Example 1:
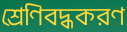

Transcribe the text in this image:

শ্রেণিবদ্ধকরণ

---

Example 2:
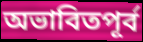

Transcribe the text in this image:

অভাবিতপূর্ব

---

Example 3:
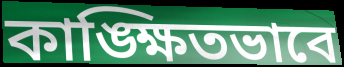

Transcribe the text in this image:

কাঙ্ক্ষিতভাবে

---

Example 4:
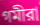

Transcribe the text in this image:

গমীরা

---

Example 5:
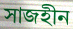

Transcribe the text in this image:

সাজহীন